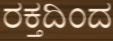
ರಕ್ತದಿಂದ